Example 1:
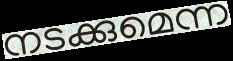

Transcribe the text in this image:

നടക്കുമെന്ന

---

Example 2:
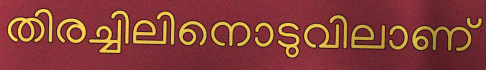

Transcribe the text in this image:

തിരച്ചിലിനൊടുവിലാണ്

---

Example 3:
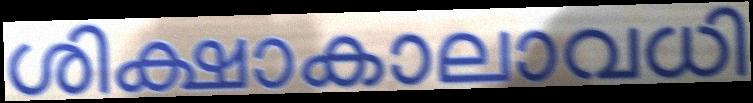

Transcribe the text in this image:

ശിക്ഷാകാലാവധി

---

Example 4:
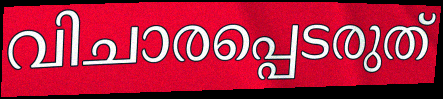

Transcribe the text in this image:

വിചാരപ്പെടരുത്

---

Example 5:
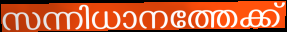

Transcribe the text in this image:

സന്നിധാനത്തേക്ക്